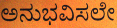
ಅನುಭವಿಸಲೇ